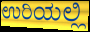
ಉರಿಯಲ್ಲಿ